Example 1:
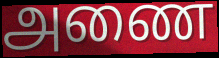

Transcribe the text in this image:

அணை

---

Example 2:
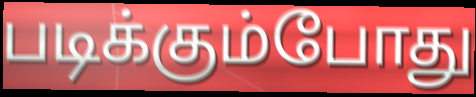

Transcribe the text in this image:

படிக்கும்போது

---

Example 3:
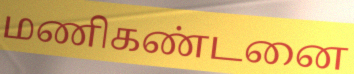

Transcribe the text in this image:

மணிகண்டனை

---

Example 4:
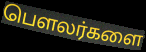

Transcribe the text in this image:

பௌலர்களை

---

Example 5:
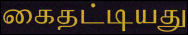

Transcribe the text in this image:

கைதட்டியது